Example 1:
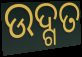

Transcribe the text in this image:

ଉଦ୍ଗତ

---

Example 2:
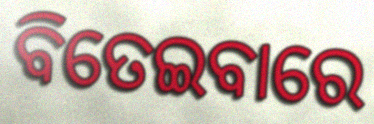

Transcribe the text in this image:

ବିତେଇବାରେ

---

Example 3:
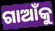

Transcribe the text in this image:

ଗାଆଁକୁ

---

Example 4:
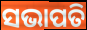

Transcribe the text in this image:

ସଭାପତି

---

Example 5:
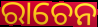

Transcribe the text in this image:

ରାଚେନ